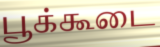
பூக்கூடை